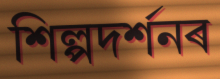
শিল্পদৰ্শনৰ